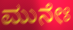
ಮುನೇಃ